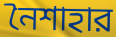
নৈশাহার